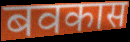
बवकास